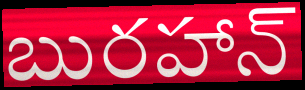
బురహాన్